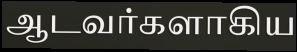
ஆடவர்களாகிய